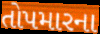
તોપમારના